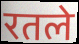
रतले